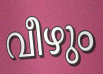
വീഴും